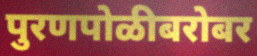
पुरणपोळीबरोबर